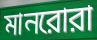
মানরোরা